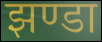
झण्डा